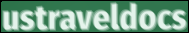
ustraveldocs